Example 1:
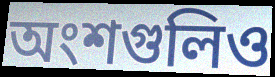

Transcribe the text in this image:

অংশগুলিও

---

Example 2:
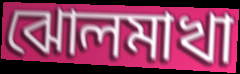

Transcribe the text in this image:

ঝোলমাখা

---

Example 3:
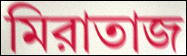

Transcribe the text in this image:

মিরাতাজ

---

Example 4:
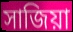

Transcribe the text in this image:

সাজিয়া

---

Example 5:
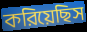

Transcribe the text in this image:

করিয়েছিস